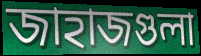
জাহাজগুলা